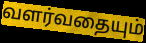
வளர்வதையும்